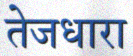
तेजधारा